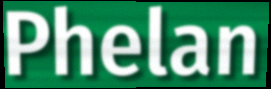
Phelan